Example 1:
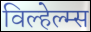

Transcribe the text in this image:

विल्हेल्म्स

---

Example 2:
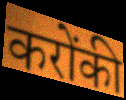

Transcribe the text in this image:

करोंकी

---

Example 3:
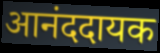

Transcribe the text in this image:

आनंददायक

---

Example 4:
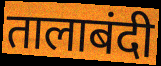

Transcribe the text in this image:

तालाबंदी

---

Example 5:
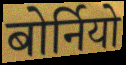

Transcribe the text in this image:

बोर्नियो